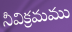
నీవిక్రమము